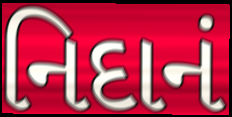
નિદાનં